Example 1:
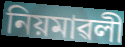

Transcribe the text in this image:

নিয়মাৱলী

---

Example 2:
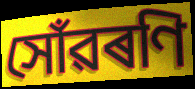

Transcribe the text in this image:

সোঁৱৰণি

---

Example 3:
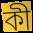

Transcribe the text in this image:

কী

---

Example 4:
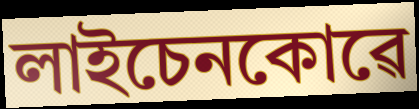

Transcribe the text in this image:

লাইচেনকোৱে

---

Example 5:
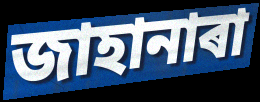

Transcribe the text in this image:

জাহানাৰা